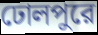
ঢোলপুরে